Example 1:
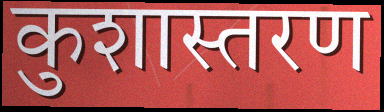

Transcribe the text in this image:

कुशास्तरण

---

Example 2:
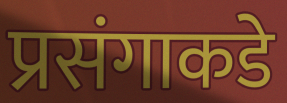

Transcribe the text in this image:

प्रसंगाकडे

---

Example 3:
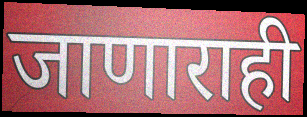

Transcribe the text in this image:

जाणाराही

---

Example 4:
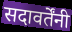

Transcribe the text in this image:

सदावर्तेंनी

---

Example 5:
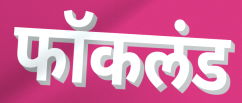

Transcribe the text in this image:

फॉकलंड